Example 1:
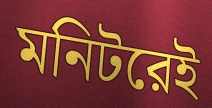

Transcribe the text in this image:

মনিটরেই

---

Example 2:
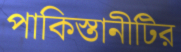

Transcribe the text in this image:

পাকিস্তানীটির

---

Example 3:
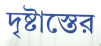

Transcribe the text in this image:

দৃষ্টাস্তের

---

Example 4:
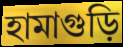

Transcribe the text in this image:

হামাগুড়ি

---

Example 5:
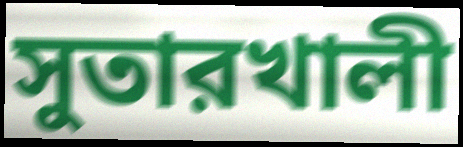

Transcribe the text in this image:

সুতারখালী